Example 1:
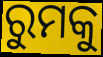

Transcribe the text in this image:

ରୁମକୁ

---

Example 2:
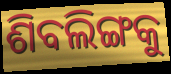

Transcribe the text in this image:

ଶିବଲିଙ୍ଗକୁ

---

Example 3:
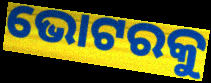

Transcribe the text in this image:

ଭୋଟରକୁ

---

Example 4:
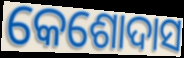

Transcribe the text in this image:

କେଶୋଦାସ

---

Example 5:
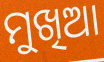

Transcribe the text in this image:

ମୁଖିଆ